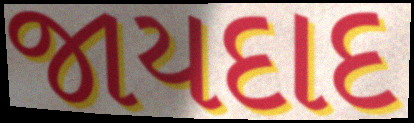
જાયદાદ